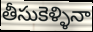
తీసుకెళ్ళినా